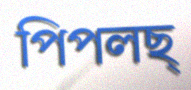
পিপলছ্